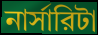
নার্সারিটা